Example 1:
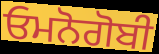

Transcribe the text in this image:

ਓਮਨੋਗੋਬੀ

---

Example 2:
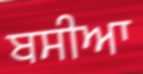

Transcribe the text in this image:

ਬਸੀਆ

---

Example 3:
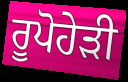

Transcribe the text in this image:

ਰੂਪੋਹੇੜੀ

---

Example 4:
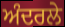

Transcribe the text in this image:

ਅੰਦਰਲੇ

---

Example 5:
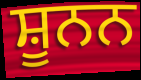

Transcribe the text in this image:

ਸ਼ੂਨਨ